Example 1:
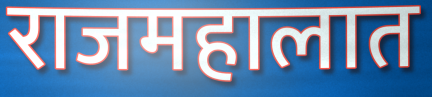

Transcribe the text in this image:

राजमहालात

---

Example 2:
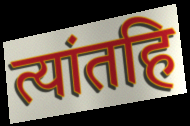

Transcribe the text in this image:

त्यांतहि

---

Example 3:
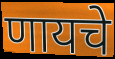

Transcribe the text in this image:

णायचे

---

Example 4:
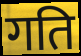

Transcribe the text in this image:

गति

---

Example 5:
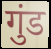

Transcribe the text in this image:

गुंड